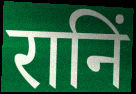
रानिं